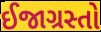
ઈજાગ્રસ્તો